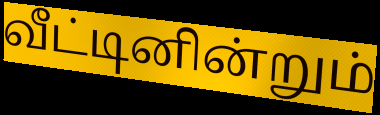
வீட்டினின்றும்